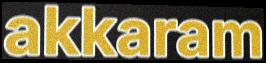
akkaram